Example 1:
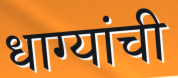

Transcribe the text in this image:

धाग्यांची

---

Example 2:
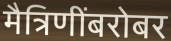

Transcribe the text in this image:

मैत्रिणींबरोबर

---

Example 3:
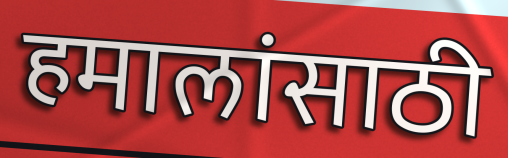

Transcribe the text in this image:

हमालांसाठी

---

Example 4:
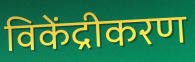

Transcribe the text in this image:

विकेंद्रीकरण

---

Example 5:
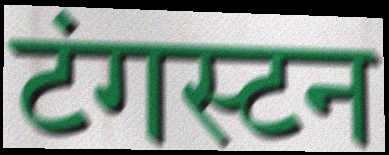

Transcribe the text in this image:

टंगस्टन